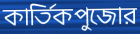
কার্তিকপুজোর